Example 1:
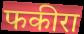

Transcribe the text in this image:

फकीरा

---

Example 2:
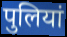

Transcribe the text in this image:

पुलियां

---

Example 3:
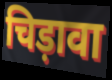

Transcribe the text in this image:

चिड़ावा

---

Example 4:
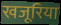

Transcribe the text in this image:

खजूरिया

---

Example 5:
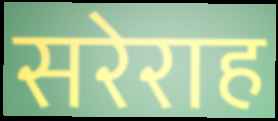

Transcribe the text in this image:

सरेराह